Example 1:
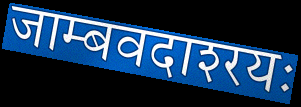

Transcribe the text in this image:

जाम्बवदाश्रयः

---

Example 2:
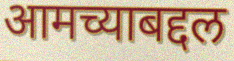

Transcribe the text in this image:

आमच्याबद्दल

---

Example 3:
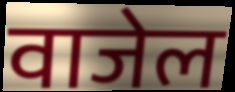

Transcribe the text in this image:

वाजेल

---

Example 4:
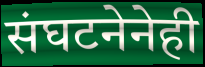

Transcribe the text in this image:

संघटनेनेही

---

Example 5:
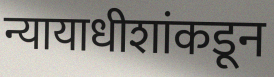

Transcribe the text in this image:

न्यायाधीशांकडून